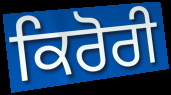
ਕਿਰੋਰੀ